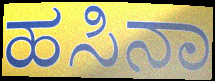
ಹಸಿನಾ